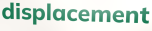
displacement